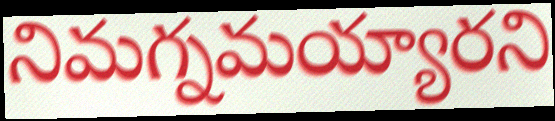
నిమగ్నమయ్యారని